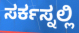
ಸರ್ಕಸ್ನಲ್ಲಿ